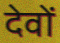
देवों